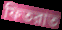
ফিতরাত